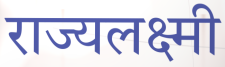
राज्यलक्ष्मी